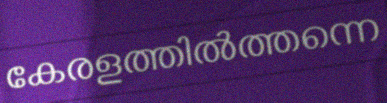
കേരളത്തിൽത്തന്നെ